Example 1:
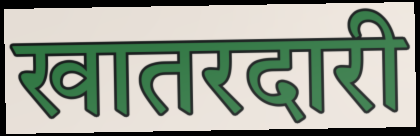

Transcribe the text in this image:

खातरदारी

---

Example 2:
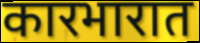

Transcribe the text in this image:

कारभारात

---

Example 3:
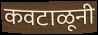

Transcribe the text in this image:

कवटाळूनी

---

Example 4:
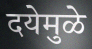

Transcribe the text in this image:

दयेमुळे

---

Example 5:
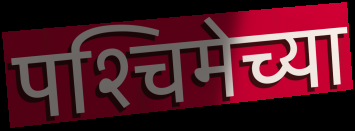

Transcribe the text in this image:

पश्चिमेच्या